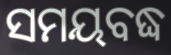
ସମୟବଦ୍ଧ